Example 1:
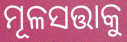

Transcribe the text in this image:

ମୂଳସତ୍ତାକୁ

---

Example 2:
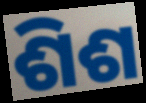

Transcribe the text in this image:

ଶିଶ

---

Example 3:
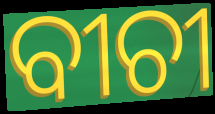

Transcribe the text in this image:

ବୀଚୀ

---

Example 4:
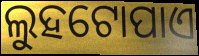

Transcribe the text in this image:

ଲୁହଟୋପାଏ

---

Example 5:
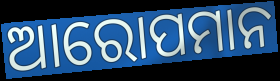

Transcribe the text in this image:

ଆରୋପମାନ